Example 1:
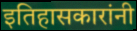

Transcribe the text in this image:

इतिहासकारांनी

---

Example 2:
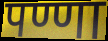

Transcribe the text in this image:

पण्णा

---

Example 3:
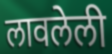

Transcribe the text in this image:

लावलेली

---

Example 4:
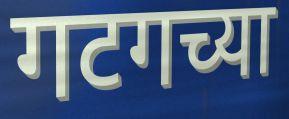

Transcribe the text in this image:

गटगच्या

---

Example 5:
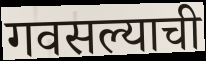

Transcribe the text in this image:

गवसल्याची